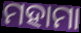
ମହାମା